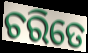
ଚରିତେ